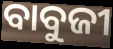
ବାବୁଜୀ